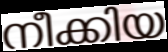
നീക്കിയ